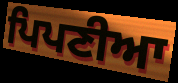
ਪਿਪਣੀਆ